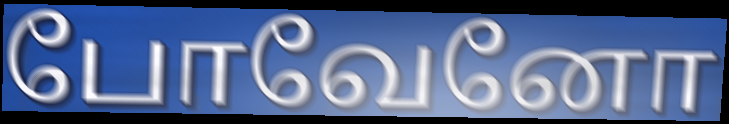
போவேனோ